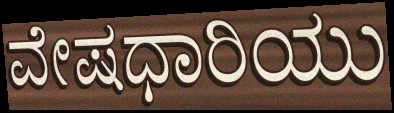
ವೇಷಧಾರಿಯು